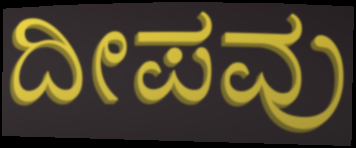
ದೀಪವು